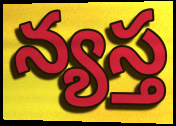
న్యస్త